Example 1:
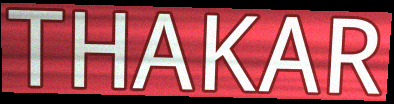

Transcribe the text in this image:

THAKAR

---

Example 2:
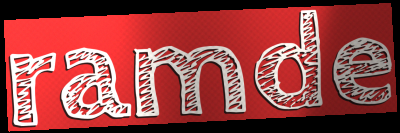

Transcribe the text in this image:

ramde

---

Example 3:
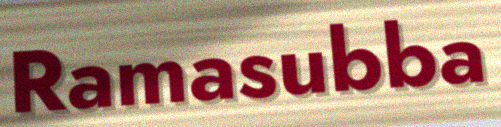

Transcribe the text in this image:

Ramasubba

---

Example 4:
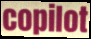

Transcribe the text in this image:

copilot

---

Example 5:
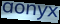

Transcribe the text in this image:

aonyx